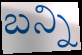
బన్ని